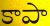
కాపా